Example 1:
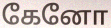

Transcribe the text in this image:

கேனோ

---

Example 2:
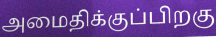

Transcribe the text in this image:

அமைதிக்குப்பிறகு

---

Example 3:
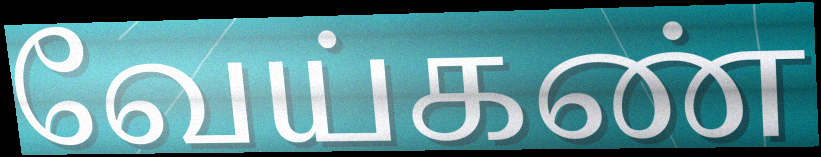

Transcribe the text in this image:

வேய்கண்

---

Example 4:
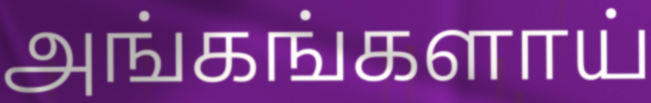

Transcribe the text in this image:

அங்கங்களாய்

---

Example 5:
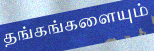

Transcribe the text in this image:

தங்கங்களையும்